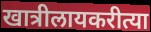
खात्रीलायकरीत्या